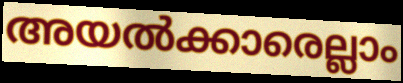
അയൽക്കാരെല്ലാം